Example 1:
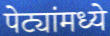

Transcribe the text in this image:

पेट्यांमध्ये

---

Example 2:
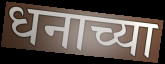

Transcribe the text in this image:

धनाच्या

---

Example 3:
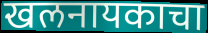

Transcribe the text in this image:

खलनायकाचा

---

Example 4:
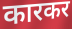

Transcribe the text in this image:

कारकर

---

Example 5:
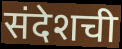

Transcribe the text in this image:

संदेशची